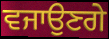
ਵਜਾਉਣਗੇ